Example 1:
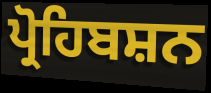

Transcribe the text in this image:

ਪ੍ਰੋਹਿਬਸ਼ਨ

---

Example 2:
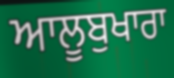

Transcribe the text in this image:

ਆਲੂਬੁਖਾਰਾ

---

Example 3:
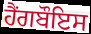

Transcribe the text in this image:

ਹੈਂਗਬੌਇਸ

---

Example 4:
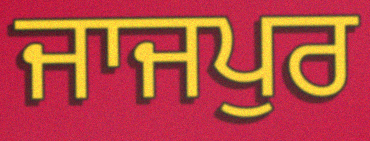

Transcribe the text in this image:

ਜਾਜਪੁਰ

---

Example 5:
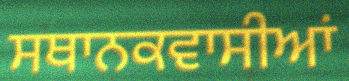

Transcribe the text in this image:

ਸਥਾਨਕਵਾਸੀਆਂ